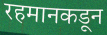
रहमानकडून